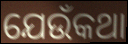
ଯେଉଁକଥା